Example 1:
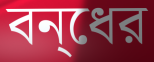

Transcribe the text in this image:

বন্‌ধের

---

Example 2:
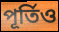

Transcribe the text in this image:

পূর্তিও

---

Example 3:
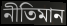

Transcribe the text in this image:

নীতিমান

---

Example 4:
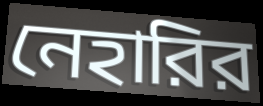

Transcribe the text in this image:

নেহারির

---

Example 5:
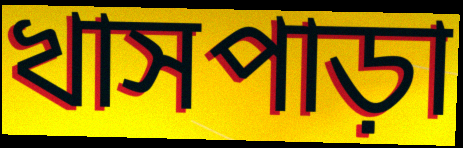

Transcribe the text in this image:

খাসপাড়া